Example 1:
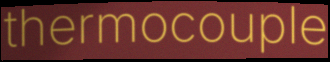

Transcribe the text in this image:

thermocouple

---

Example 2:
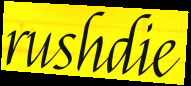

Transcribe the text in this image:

rushdie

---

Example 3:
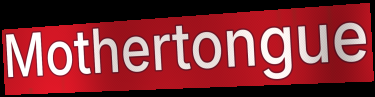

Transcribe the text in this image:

Mothertongue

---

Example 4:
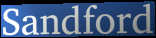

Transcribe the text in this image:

Sandford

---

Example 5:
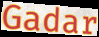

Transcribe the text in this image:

Gadar